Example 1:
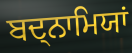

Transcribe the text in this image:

ਬਦ੍ਨਾਮਿਯਾਂ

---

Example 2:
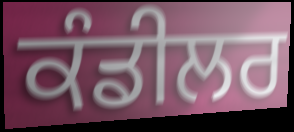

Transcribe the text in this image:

ਕੰਡੀਲਰ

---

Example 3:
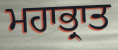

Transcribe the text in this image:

ਮਹਾਭ੍ਰਾਤ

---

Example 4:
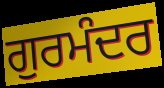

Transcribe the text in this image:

ਗੁਰਮੰਦਰ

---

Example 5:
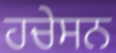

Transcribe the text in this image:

ਹਚੇਸਨ